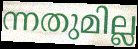
ന്നതുമില്ല